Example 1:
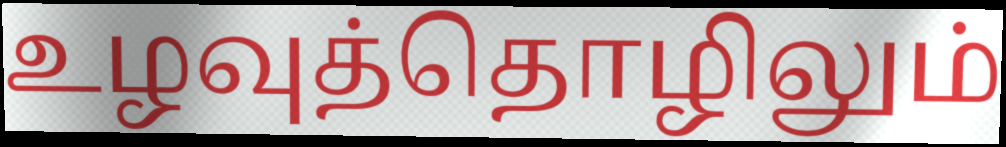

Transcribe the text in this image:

உழவுத்தொழிலும்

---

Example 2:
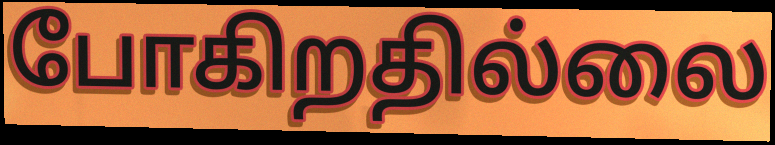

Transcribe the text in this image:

போகிறதில்லை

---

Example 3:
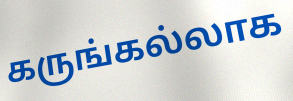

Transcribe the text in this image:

கருங்கல்லாக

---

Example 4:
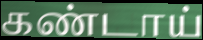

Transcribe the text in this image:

கண்டாய்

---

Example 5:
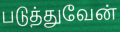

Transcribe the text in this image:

படுத்துவேன்